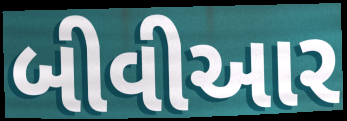
બીવીઆર